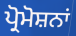
ਪ੍ਰੋਮੋਸ਼ਨਾਂ